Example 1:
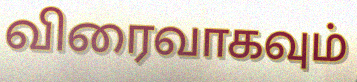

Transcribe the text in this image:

விரைவாகவும்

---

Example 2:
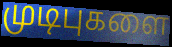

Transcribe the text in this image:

முடிபுகளை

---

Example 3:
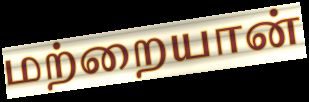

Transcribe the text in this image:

மற்றையான்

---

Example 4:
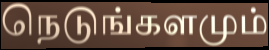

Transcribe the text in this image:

நெடுங்களமும்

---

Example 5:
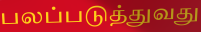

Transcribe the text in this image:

பலப்படுத்துவது